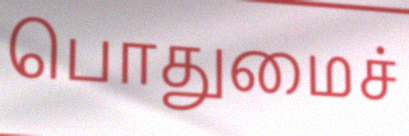
பொதுமைச்